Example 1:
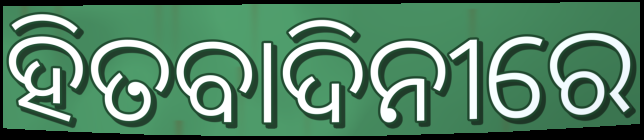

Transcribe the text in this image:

ହିତବାଦିନୀରେ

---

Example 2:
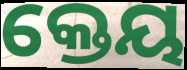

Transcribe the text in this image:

କ୍ତେୟ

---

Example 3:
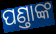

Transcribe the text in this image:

ପଣ୍ତାଙ୍କ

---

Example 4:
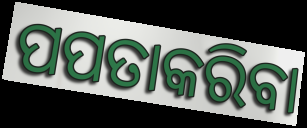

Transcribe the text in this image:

ପପତାକରିବା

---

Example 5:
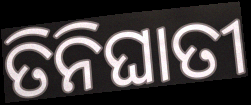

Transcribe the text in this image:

ତିନିଘାତୀ